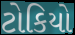
ટોકિયો